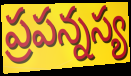
ప్రపన్నస్య